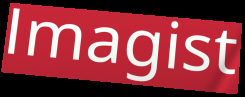
Imagist